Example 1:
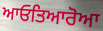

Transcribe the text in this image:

ਆਓਤਿਆਰੋਆ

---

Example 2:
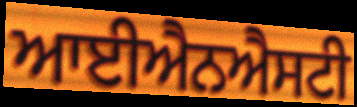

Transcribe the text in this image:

ਆਈਐਨਐਸਟੀ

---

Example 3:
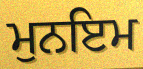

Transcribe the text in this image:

ਮੁਨਇਮ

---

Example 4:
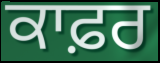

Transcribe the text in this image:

ਕਾਫ਼ਰ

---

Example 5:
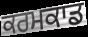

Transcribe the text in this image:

ਕਰਮਕਾਡ